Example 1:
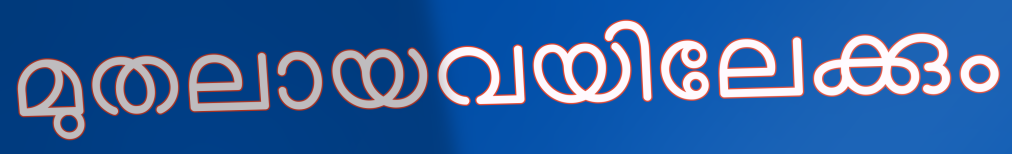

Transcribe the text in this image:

മുതലായവയിലേക്കും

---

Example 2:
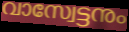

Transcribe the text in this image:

വാസ്വേട്ടനും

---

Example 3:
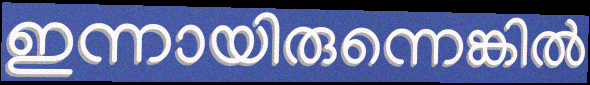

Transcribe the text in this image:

ഇന്നായിരുന്നെങ്കിൽ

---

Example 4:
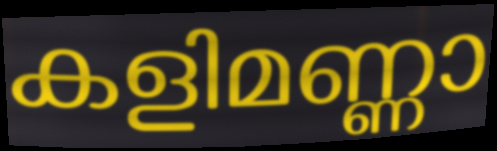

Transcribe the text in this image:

കളിമണ്ണാ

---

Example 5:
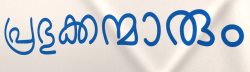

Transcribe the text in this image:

പ്രഭുക്കന്മാരും